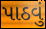
પાઠવું